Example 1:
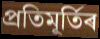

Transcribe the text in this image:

প্ৰতিমূৰ্তিৰ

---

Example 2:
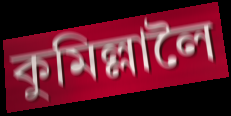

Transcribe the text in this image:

কুমিল্লালৈ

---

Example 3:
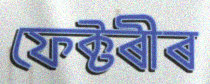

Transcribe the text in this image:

ফেক্টৰীৰ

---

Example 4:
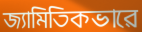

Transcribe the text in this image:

জ্যামিতিকভাৱে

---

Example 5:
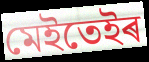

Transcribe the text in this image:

মেইতেইৰ